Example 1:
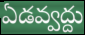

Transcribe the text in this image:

ఏడవ్వద్దు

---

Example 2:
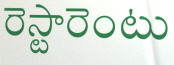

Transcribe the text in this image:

రెస్టారెంటు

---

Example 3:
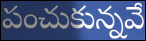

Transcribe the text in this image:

పంచుకున్నవే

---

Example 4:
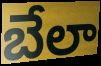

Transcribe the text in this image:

బేలా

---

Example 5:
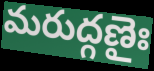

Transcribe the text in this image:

మరుద్గణైః